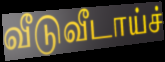
வீடுவீடாய்ச்